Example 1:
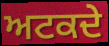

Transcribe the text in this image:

ਅਟਕਦੇ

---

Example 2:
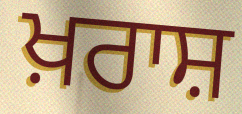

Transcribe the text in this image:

ਖ਼ਰਾਸ਼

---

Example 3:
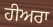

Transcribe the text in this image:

ਹੀਅਰਾ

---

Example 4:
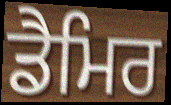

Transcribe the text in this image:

ਡੈਮਿਰ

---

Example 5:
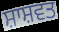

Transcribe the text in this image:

ਸ਼ਾਸ਼ਵਤ